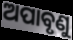
ଅପାବୃଣୁ